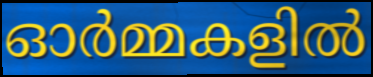
ഓർമ്മകളിൽ